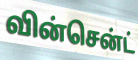
வின்சென்ட்